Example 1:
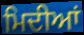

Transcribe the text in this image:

ਮਿਦੀਆਂ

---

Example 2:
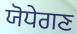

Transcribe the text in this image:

ਯੋਧੇਗਣ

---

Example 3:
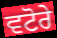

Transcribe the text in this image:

ਵਟੋਰੇ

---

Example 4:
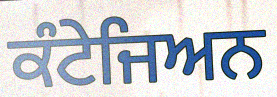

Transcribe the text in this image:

ਕੰਟੇਜਿਅਨ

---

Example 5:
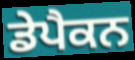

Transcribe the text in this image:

ਡੇਪੈਕਨ